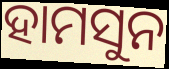
ହାମସୁନ